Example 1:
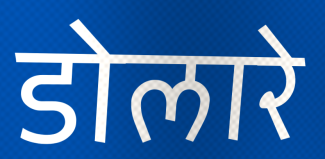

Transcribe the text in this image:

डोलारे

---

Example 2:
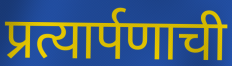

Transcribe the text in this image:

प्रत्यार्पणाची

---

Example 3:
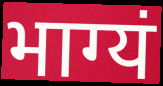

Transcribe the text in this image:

भाग्यं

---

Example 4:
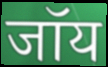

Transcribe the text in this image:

जॉय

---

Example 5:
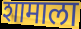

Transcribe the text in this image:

शामाला